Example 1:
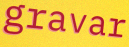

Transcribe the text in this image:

gravar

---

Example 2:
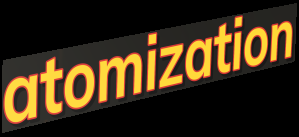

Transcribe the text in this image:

atomization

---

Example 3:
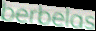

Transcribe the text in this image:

berbelas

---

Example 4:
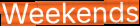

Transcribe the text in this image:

Weekends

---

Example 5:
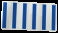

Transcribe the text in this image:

IIIIII